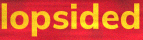
lopsided